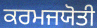
ਕਰਮਜਯੋਤੀ